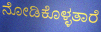
ನೋಡಿಕೊಳ್ಳತಾರೆ